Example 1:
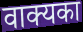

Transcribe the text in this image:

वाक्यका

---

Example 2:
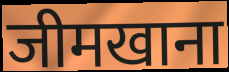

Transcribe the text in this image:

जीमखाना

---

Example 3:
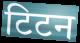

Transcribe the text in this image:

टिटन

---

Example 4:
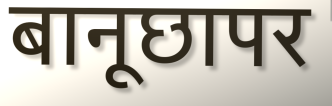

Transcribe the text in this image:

बानूछापर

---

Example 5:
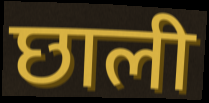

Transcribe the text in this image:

छाली